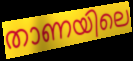
താണയിലെ